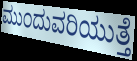
ಮುಂದುವರಿಯುತ್ತೆ